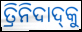
ତ୍ରିନିଦାଦ୍‍କୁ